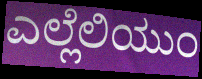
ಎಲ್ಲೆಲಿಯುಂ